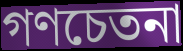
গণচেতনা